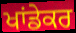
ਖਾਂਡੇਕਰ